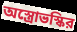
অস্ত্রোভস্কির